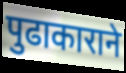
पुढाकाराने